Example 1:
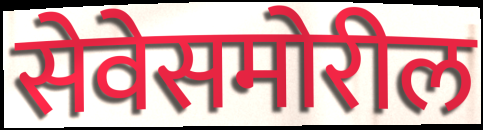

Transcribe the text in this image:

सेवेसमोरील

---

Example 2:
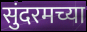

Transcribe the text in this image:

सुंदरमच्या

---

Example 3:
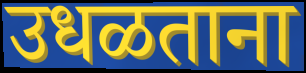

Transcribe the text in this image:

उधळताना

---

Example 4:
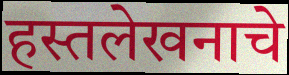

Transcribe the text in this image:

हस्तलेखनाचे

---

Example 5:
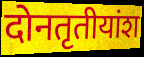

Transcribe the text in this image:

दोनतृतीयांश